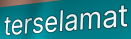
terselamat